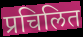
प्रचिलित